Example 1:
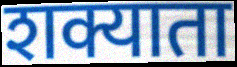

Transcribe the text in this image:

शक्याता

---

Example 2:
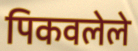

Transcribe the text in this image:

पिकवलेले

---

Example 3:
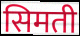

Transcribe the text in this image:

सिमती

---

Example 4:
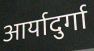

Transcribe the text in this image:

आर्यादुर्गा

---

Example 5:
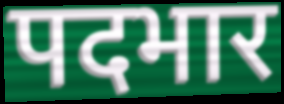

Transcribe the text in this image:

पदभार